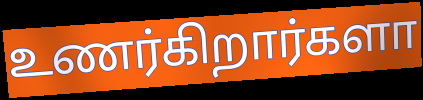
உணர்கிறார்களா